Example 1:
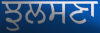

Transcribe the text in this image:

ਝੁਲਸਣਾ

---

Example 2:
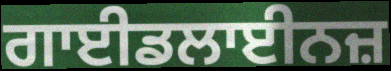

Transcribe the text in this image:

ਗਾਈਡਲਾਈਨਜ਼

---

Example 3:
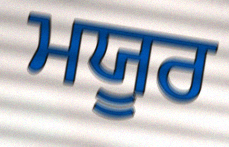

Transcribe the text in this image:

ਮਯੂਰ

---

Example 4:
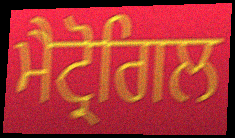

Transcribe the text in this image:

ਮੈਟ੍ਰੋਗਿਲ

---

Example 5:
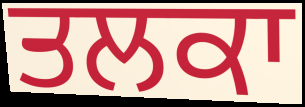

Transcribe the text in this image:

ਤਲਕਾ